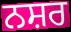
ਨਸ਼ਰ